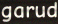
garud